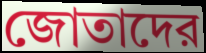
জোতাদের